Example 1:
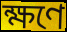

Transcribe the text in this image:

ক্ষণে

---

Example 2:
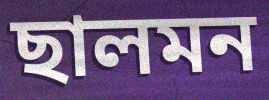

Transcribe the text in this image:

ছালমন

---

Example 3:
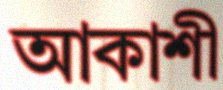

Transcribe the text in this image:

আকাশী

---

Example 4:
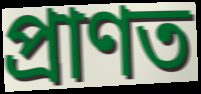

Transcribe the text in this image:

প্ৰাণত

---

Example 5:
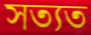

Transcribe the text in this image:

সত্যত